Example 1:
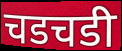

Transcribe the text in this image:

चडचडी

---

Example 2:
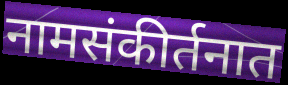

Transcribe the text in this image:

नामसंकीर्तनात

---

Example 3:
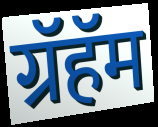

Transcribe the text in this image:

ग्रॅहॅम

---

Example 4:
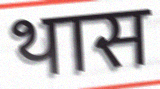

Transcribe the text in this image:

थास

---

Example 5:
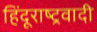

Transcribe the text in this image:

हिंदूराष्ट्रवादी